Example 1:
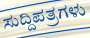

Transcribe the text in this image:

ಸುದ್ದಿಪತ್ರಗಳು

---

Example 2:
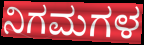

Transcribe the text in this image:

ನಿಗಮಗಳ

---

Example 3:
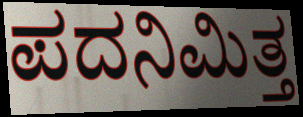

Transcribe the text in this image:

ಪದನಿಮಿತ್ತ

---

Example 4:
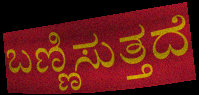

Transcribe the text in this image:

ಬಣ್ಣಿಸುತ್ತದೆ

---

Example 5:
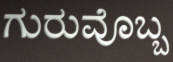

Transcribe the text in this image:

ಗುರುವೊಬ್ಬ